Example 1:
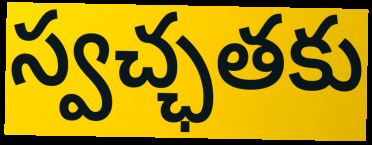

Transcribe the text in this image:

స్వచ్ఛతకు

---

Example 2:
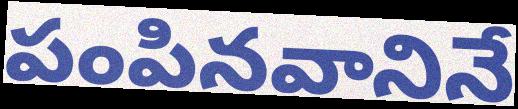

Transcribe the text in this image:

పంపినవానినే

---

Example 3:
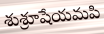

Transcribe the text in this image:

శుశ్రూషేయమపి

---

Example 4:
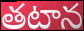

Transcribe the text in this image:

తటాన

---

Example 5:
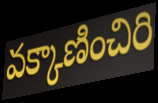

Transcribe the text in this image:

వక్కాణించిరి